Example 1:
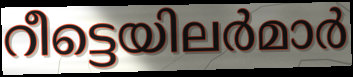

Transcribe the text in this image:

റീട്ടെയിലർമാർ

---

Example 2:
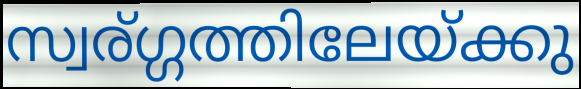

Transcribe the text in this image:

സ്വര്ഗ്ഗത്തിലേയ്ക്കു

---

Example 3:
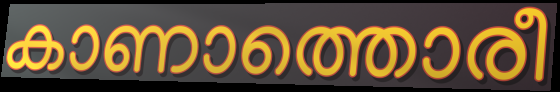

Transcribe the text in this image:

കാണാത്തൊരീ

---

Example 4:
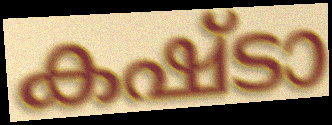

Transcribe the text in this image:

കഷ്ടാ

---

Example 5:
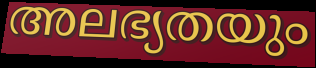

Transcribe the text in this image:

അലഭ്യതയും